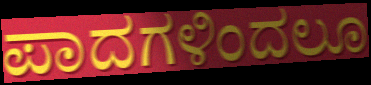
ಪಾದಗಳಿಂದಲೂ